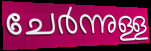
ചേർന്നുള്ള